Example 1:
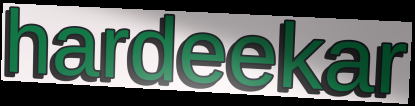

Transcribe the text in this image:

hardeekar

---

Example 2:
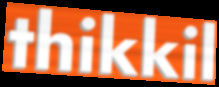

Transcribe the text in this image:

thikkil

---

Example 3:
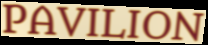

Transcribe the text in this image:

PAVILION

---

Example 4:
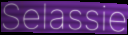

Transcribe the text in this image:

Selassie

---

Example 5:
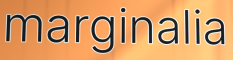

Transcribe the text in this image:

marginalia